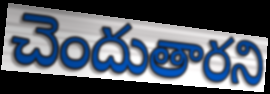
చెందుతారని